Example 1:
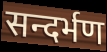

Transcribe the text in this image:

सन्दर्भण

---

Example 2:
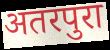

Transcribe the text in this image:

अतरपुरा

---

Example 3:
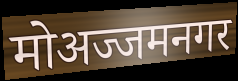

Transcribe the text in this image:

मोअज्जमनगर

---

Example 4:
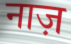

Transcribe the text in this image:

नाज़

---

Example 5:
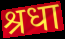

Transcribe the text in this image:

श्रधा